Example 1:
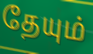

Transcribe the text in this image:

தேயும்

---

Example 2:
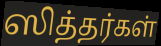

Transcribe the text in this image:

ஸித்தர்கள்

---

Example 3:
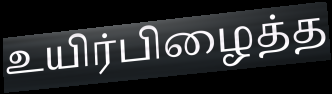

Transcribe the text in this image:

உயிர்பிழைத்த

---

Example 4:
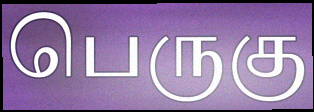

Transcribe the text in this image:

பெருகு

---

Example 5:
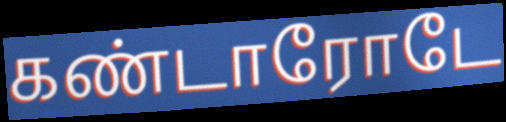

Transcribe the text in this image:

கண்டாரோடே